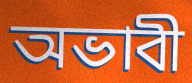
অভাবী